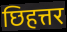
छिहत्तर